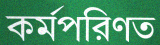
কর্মপরিণত